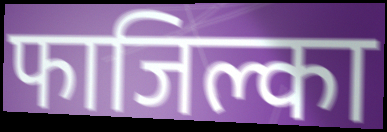
फाजिल्का